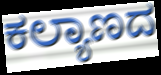
ಕಲ್ಯಾಣದ